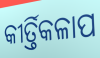
କୀର୍ତ୍ତିକଳାପ